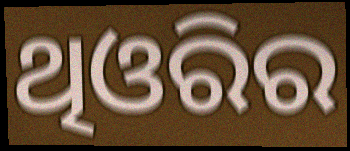
ଥିଓରିର